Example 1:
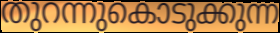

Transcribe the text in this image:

തുറന്നുകൊടുക്കുന്ന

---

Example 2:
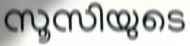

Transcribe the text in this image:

സൂസിയുടെ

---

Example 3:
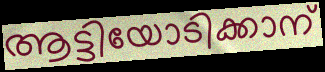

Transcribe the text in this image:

ആട്ടിയോടിക്കാന്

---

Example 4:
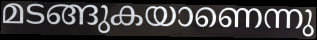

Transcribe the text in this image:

മടങ്ങുകയാണെന്നു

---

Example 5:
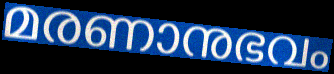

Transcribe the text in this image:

മരണാനുഭവം